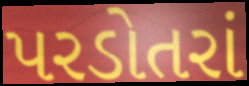
પરડોતરાં